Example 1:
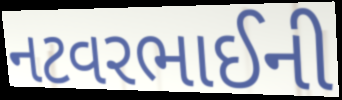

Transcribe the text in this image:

નટવરભાઈની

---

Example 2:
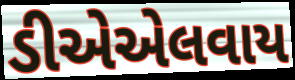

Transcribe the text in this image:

ડીએએલવાય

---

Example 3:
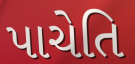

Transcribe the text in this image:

પાચેતિ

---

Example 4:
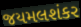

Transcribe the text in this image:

જયમલશંકર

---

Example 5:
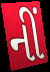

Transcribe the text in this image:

નીં